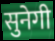
सुनेगी